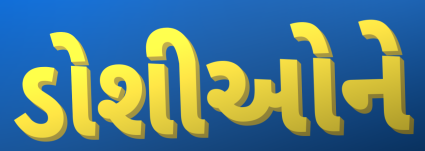
ડોશીઓને